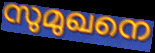
സുമുഖനെ